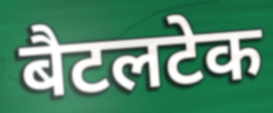
बैटलटेक